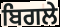
ਬਿਗਲੇ